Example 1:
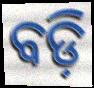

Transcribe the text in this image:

ବଡ଼ି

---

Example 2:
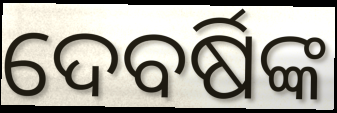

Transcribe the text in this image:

ଦେବର୍ଷିଙ୍କ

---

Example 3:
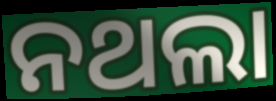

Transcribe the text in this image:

ନଥଲା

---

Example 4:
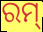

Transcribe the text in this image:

ରମ୍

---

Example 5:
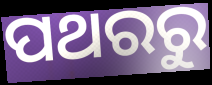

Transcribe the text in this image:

ପଥରରୁ